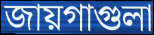
জায়গাগুলা